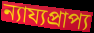
ন্যায্যপ্রাপ্য